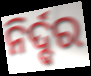
ନିର୍ଦ୍ଦର